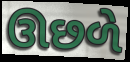
ઊછળે